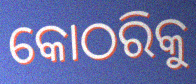
କୋଠରିକୁ